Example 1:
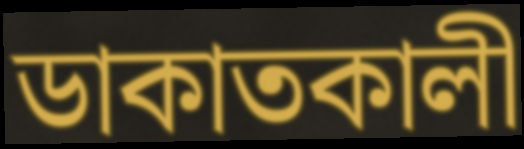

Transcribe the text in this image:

ডাকাতকালী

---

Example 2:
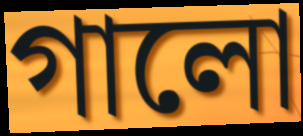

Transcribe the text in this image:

গালো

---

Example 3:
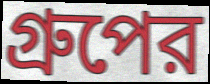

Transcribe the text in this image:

গ্রুপের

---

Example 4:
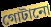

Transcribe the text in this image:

গোটানো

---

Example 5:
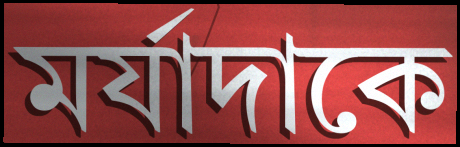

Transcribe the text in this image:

মর্যাদাকে